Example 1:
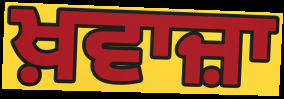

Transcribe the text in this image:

ਖ਼ਵਾਜ਼ਾ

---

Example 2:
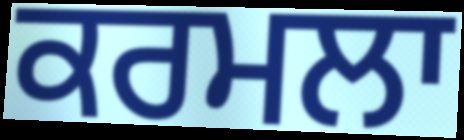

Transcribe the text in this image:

ਕਰਮਲਾ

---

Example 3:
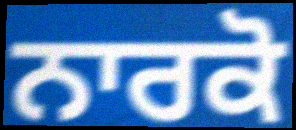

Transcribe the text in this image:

ਨਾਰਕੋ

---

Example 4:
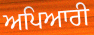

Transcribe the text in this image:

ਅਪਿਆਰੀ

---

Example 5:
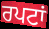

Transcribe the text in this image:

ਰਪਟਾਂ